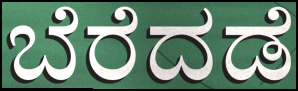
ಬೆರೆದಡೆ